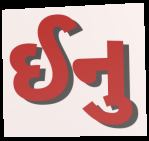
ઈનુ